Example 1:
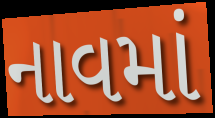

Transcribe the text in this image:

નાવમાં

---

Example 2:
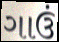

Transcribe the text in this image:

ગાઉં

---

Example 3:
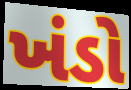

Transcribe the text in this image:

ખંડો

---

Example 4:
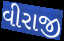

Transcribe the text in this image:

વીરાજી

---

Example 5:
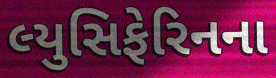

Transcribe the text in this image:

લ્યુસિફેરિનના